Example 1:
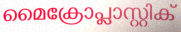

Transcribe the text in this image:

മൈക്രോപ്ലാസ്റ്റിക്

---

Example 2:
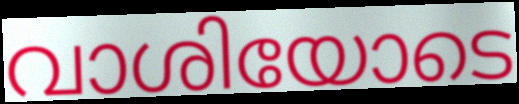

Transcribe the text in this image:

വാശിയോടെ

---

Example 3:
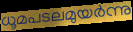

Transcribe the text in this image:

ധൂമപടലമുയർന്നു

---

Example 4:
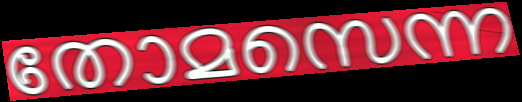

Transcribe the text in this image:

തോമസെന്ന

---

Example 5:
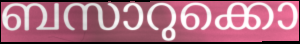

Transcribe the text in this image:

ബസാറുക്കൊ